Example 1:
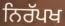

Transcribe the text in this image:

ਨਿਰੱਪਖ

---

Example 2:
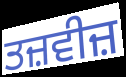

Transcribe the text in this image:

ਤਜ਼ਵੀਜ਼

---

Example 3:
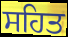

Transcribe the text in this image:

ਸਹਿਤ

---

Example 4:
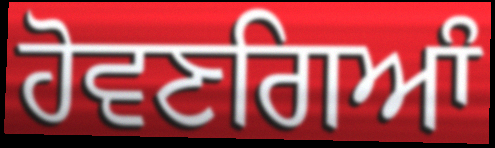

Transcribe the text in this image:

ਹੋਵਣਗਿਆੰ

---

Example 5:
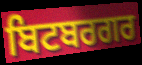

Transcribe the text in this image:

ਬਿਟਬਰਗਰ